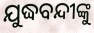
ଯୁଦ୍ଧବନ୍ଦୀଙ୍କୁ